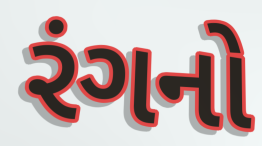
રંગનો